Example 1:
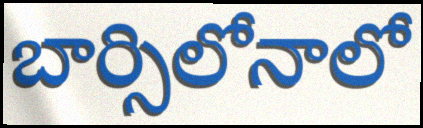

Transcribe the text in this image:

బార్సిలోనాలో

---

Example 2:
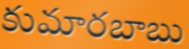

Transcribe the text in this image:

కుమారబాబు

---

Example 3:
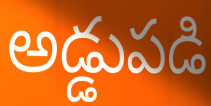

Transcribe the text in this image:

అడ్డుపడి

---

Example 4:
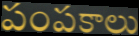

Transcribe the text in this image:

పంపకాలు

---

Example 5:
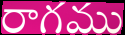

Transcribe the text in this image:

రాగము